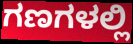
ಗಣಗಳಲ್ಲಿ